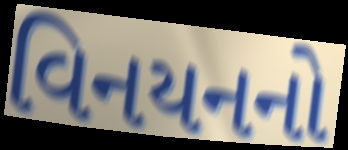
વિનયનનો